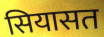
सियासत